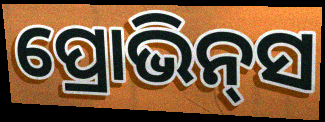
ପ୍ରୋଭିନ୍‌ସ